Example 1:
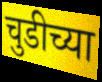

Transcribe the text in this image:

चुडीच्या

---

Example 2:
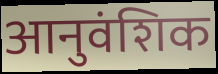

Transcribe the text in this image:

आनुवंशिक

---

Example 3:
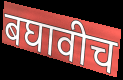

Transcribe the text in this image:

बघावीच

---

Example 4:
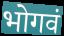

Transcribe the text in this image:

भोगवं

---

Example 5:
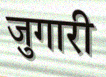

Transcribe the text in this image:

जुगारी